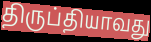
திருப்தியாவது